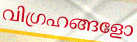
വിഗ്രഹങ്ങളോ